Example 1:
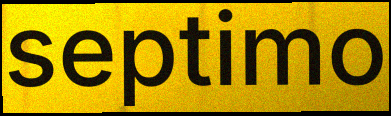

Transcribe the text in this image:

septimo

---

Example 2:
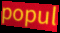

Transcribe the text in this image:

popul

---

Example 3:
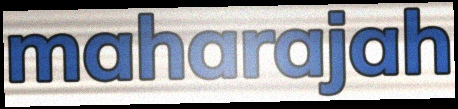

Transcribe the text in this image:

maharajah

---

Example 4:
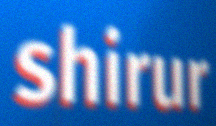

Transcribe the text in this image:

shirur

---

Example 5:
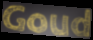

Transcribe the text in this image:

Goud